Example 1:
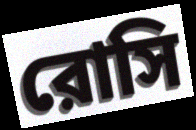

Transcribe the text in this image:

রোসি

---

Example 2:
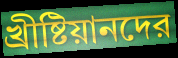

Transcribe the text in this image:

খ্রীষ্টিয়ানদের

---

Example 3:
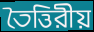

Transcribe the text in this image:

তৈত্তিরীয়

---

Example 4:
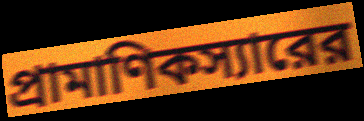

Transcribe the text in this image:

প্রামাণিকস্যারের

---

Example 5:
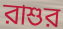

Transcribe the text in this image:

রাশুর